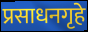
प्रसाधनगृहे